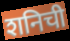
शनिची